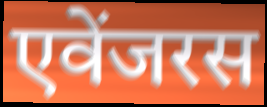
एवेंजरस